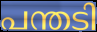
പന്തടി